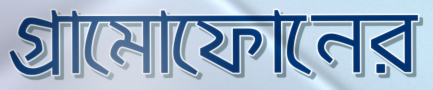
গ্রামোফোনের